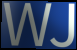
WJ